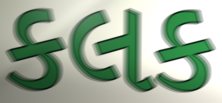
કલક